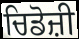
ਚਿਡੋਜ਼ੀ